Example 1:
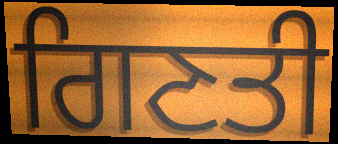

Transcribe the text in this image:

ਗਿਣਤੀ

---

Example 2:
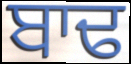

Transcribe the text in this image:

ਬਾਢ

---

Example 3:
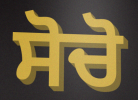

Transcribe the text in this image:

ਸੋਚੋ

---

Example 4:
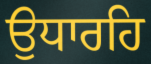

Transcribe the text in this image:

ਉਧਾਰਹਿ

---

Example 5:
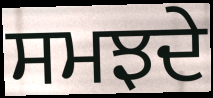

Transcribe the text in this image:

ਸਮਝਦੇ